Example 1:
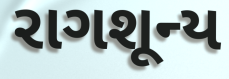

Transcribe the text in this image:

રાગશૂન્ય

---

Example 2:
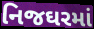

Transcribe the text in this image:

નિજઘરમાં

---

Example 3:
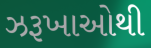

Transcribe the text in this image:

ઝરૂખાઓથી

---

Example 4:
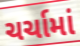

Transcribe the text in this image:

ચર્ચામાં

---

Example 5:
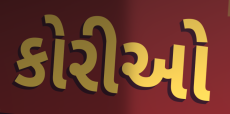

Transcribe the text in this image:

કોરીઓ